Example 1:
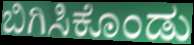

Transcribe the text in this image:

ಬಿಗಿಸಿಕೊಂಡು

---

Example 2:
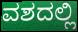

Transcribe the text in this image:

ವಶದಲ್ಲಿ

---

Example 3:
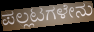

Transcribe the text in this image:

ಪಲ್ಲಟಗಳೇನು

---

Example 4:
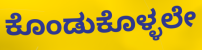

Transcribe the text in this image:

ಕೊಂಡುಕೊಳ್ಳಲೇ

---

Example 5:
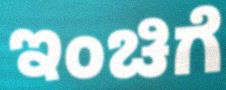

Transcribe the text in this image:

ಇಂಚಿಗೆ